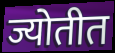
ज्योतीत